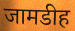
जामडीह